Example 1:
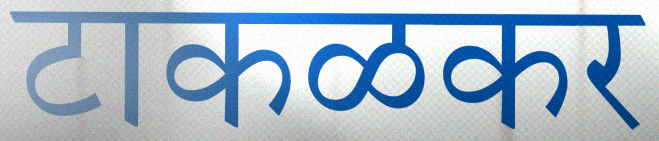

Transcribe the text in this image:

टाकळकर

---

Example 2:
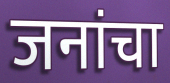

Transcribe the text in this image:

जनांचा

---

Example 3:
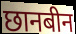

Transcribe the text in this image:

छानबीन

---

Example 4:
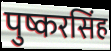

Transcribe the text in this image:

पुष्करसिंह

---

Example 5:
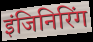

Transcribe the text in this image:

इंजिनिरिंग